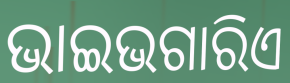
ଭାଇଭଗାରିଏ